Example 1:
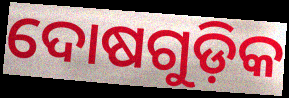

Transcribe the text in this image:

ଦୋଷଗୁଡ଼ିକ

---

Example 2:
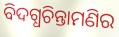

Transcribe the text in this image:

ବିଦଗ୍ଧଚିନ୍ତାମଣିର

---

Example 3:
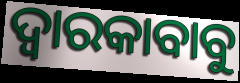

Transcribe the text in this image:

ଦ୍ୱାରକାବାବୁ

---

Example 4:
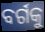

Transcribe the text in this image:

ବର୍ଗକୁ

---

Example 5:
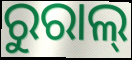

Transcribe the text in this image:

ରୁରାଲ୍